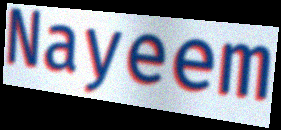
Nayeem